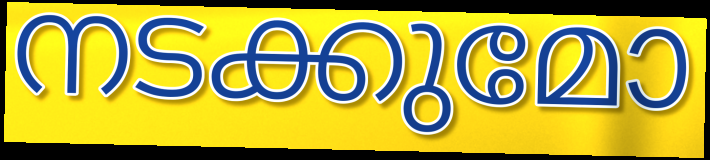
നടക്കുമോ